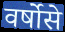
वर्षोसे